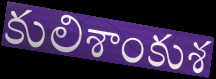
కులిశాంకుశ